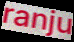
ranju